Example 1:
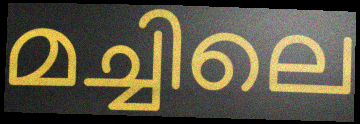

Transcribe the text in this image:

മച്ചിലെ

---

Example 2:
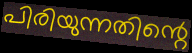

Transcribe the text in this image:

പിരിയുന്നതിന്റെ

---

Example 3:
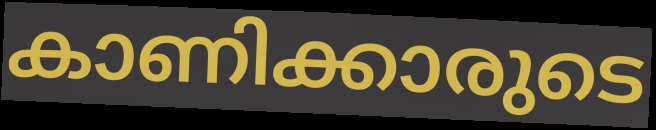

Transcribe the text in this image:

കാണിക്കാരുടെ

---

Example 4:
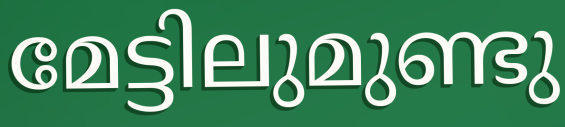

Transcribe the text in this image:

മേട്ടിലുമുണ്ടു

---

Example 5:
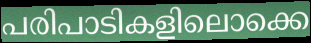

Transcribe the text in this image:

പരിപാടികളിലൊക്കെ